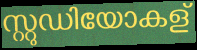
സ്റ്റുഡിയോകള്